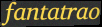
fantatrao